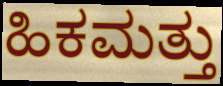
ಹಿಕಮತ್ತು